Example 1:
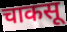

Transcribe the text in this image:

चाकसू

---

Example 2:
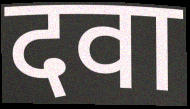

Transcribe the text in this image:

दवा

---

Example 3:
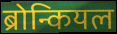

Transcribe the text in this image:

ब्रोन्कियल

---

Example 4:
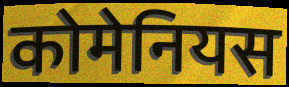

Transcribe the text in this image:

कोमेनियस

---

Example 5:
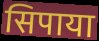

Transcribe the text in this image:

सिपाया